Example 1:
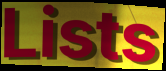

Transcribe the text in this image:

Lists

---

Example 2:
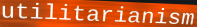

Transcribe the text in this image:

utilitarianism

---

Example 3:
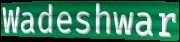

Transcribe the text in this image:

Wadeshwar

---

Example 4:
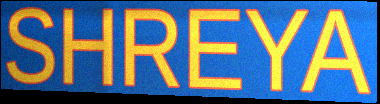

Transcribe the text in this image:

SHREYA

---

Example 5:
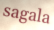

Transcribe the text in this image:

sagala